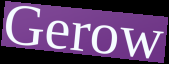
Gerow